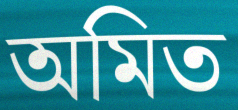
অমিত